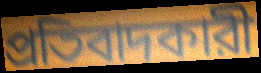
প্রতিবাদকারী